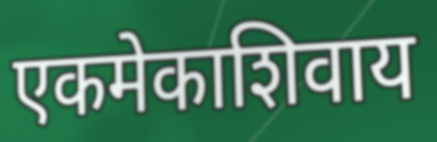
एकमेकाशिवाय